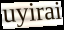
uyirai